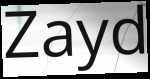
Zayd